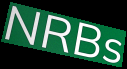
NRBs